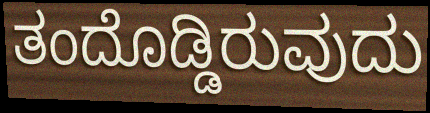
ತಂದೊಡ್ಡಿರುವುದು